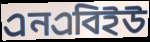
এনএবিইউ